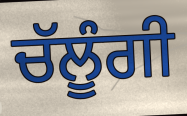
ਚੱਲੂੰਗੀ